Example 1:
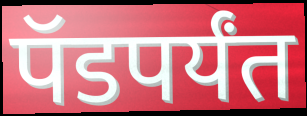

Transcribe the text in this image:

पॅडपर्यंत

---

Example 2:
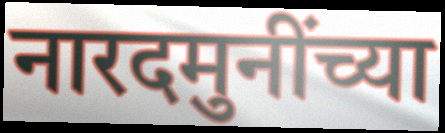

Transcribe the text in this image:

नारदमुनींच्या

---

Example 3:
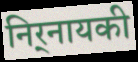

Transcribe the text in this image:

निर्नायकी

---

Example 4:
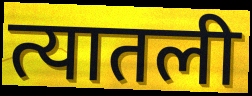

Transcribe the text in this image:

त्यातली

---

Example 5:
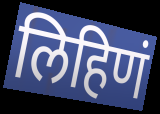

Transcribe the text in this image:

लिहिणं